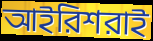
আইরিশরাই